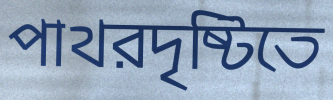
পাথরদৃষ্টিতে